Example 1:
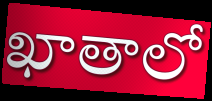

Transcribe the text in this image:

ఖాతాలో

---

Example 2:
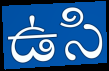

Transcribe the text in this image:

ఉసి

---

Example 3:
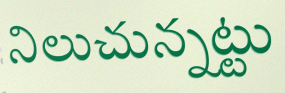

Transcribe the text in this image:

నిలుచున్నట్టు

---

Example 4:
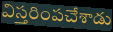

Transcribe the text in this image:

విస్తరింపచేశాడు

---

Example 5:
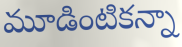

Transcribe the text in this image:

మూడింటికన్నా